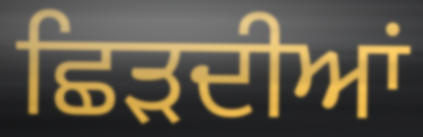
ਛਿੜਦੀਆਂ